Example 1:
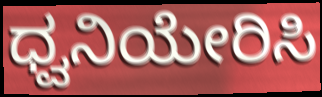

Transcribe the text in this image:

ಧ್ವನಿಯೇರಿಸಿ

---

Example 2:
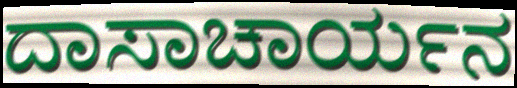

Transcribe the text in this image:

ದಾಸಾಚಾರ್ಯನ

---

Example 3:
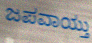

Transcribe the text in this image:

ಜಪವಾಯ್ತು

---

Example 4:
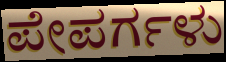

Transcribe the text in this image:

ಪೇಪರ್ಗಳು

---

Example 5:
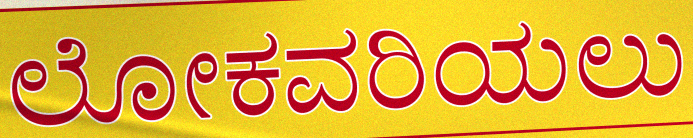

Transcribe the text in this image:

ಲೋಕವರಿಯಲು